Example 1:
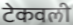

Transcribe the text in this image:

टेकवली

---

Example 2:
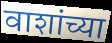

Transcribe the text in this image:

वाशांच्या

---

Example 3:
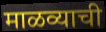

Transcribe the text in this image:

माळव्याची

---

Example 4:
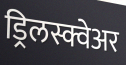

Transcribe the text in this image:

ड्रिलस्क्वेअर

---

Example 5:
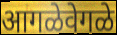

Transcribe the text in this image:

आगळेवेगळे